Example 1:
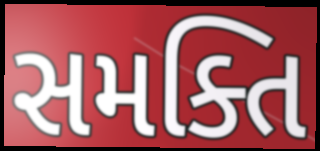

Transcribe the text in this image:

સમક્તિ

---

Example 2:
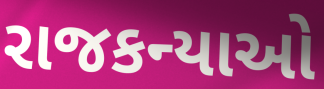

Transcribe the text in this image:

રાજકન્યાઓ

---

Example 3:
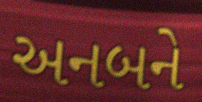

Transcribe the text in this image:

અનબને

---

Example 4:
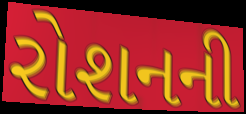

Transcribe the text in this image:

રોશનની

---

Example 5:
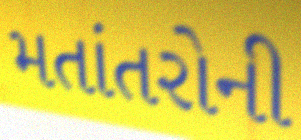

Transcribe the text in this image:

મતાંતરોની